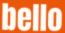
bello